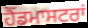
ਹੈੱਡਮਾਸਟਰਾਂ